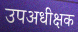
उपअधीक्षक